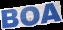
BOA